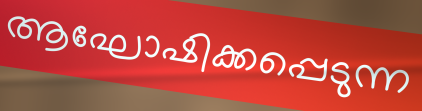
ആഘോഷിക്കപ്പെടുന്ന